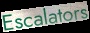
Escalators